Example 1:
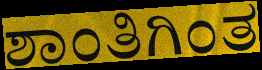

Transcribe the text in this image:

ಶಾಂತಿಗಿಂತ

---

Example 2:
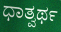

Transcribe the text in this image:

ಧಾತ್ವರ್ಥ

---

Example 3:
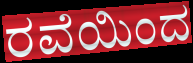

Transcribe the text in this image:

ರವೆಯಿಂದ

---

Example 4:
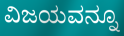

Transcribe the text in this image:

ವಿಜಯವನ್ನೂ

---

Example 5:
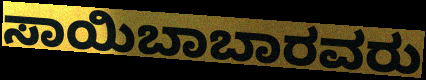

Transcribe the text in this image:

ಸಾಯಿಬಾಬಾರವರು